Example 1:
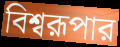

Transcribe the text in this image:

বিশ্বরূপার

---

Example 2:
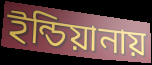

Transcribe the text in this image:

ইন্ডিয়ানায়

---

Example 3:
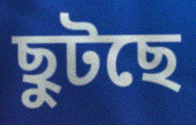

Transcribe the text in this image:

ছুটছে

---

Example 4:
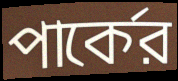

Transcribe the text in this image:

পার্কের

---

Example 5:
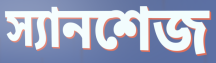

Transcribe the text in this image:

স্যানশেজ